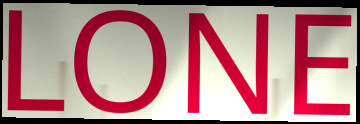
LONE